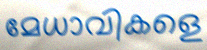
മേധാവികളെ